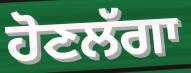
ਹੋਣਲੱਗਾ